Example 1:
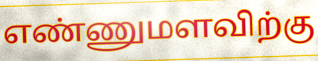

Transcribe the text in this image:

எண்ணுமளவிற்கு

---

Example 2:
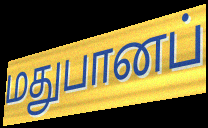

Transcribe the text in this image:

மதுபானப்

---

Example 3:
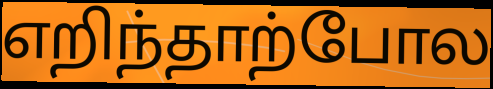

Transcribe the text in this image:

எறிந்தாற்போல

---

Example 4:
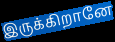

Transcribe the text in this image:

இருக்கிறானே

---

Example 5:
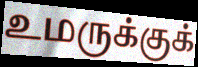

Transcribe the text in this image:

உமருக்குக்